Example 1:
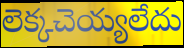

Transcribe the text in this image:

లెక్కచెయ్యలేదు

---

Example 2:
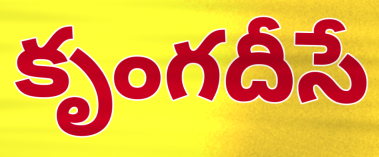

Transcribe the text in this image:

కృంగదీసే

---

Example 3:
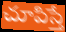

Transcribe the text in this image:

చూపిస్తే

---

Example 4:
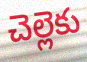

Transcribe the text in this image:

చెల్లెకు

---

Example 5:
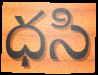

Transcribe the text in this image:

ధసి